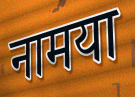
नामया